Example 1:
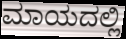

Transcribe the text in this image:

ಮಾಯದಲ್ಲಿ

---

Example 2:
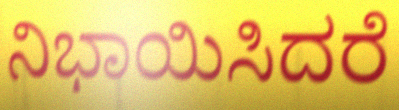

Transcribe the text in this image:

ನಿಭಾಯಿಸಿದರೆ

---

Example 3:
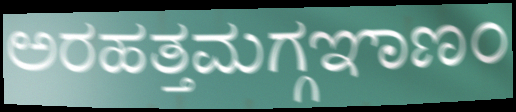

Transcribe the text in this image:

ಅರಹತ್ತಮಗ್ಗಞಾಣಂ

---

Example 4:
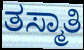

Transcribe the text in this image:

ತಸ್ಮಾತಿ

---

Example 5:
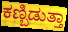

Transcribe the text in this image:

ಕಣ್ಬಿಡುತ್ತಾ